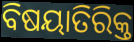
ବିଷୟାତିରିକ୍ତ